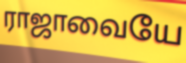
ராஜாவையே